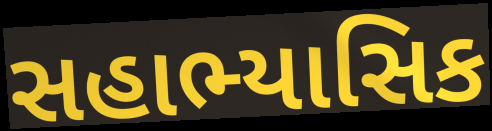
સહાભ્યાસિક